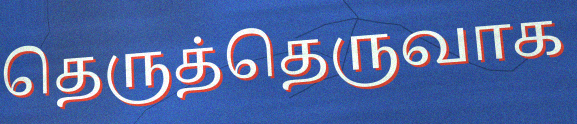
தெருத்தெருவாக